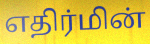
எதிர்மின்